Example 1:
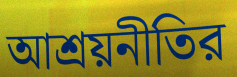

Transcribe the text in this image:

আশ্রয়নীতির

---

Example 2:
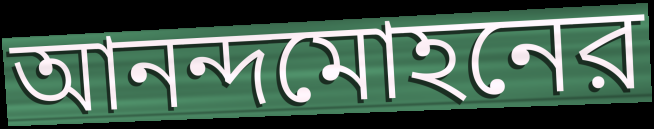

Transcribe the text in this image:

আনন্দমোহনের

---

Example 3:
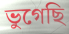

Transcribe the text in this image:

ভুগেছি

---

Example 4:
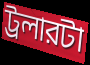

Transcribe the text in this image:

ট্রলারটা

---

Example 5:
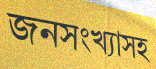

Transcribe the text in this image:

জনসংখ্যাসহ